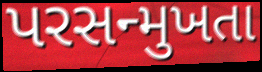
પરસન્મુખતા